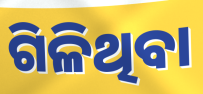
ଗିଳିଥିବା